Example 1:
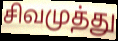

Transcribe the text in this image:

சிவமுத்து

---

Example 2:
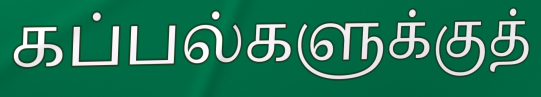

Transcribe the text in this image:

கப்பல்களுக்குத்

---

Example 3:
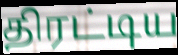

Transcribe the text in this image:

திரட்டிய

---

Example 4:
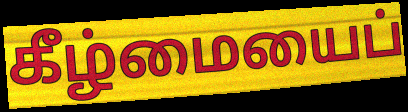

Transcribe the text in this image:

கீழ்மையைப்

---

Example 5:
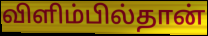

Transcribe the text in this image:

விளிம்பில்தான்